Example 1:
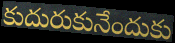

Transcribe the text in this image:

కుదురుకునేందుకు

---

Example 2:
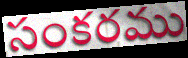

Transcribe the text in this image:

సంకరము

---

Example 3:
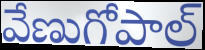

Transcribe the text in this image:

వేణుగోపాల్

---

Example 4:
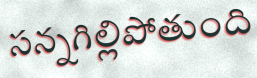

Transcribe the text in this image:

సన్నగిల్లిపోతుంది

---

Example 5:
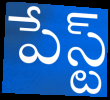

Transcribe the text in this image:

పేస్ట్